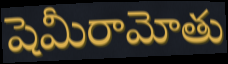
షెమీరామోతు